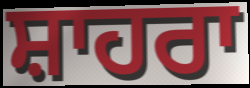
ਸ਼ਾਹਰਾ